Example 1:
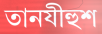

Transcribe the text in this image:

তানযীহুশ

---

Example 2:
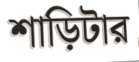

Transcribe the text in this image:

শাড়িটার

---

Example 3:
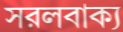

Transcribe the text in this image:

সরলবাক্য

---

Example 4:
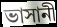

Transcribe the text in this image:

ভাসানী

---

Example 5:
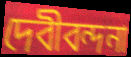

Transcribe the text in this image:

দেবীবন্দনা